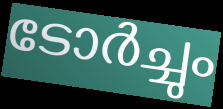
ടോർച്ചും